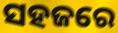
ସହଜରେ